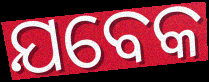
ଯବେକ